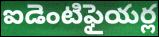
ఐడెంటిఫైయర్ల